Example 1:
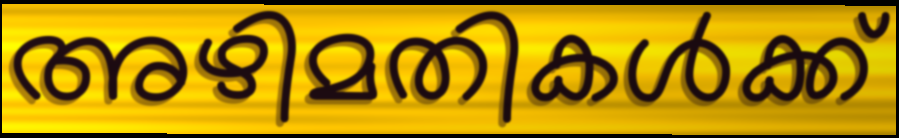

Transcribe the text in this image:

അഴിമതികൾക്ക്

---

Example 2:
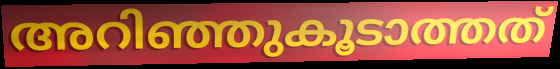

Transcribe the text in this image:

അറിഞ്ഞുകൂടാത്തത്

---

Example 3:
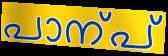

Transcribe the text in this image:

പാന്പ്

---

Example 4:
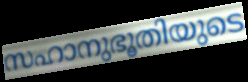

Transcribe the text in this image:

സഹാനുഭൂതിയുടെ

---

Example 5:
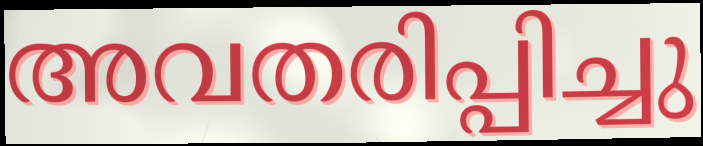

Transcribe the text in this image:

അവതരിപ്പിച്ചു